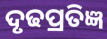
ଦୃଢପ୍ରତିଜ୍ଞ